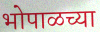
भोपाळच्या